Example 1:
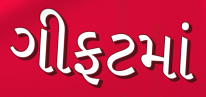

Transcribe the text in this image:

ગીફટમાં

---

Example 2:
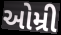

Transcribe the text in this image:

ઓમ્રી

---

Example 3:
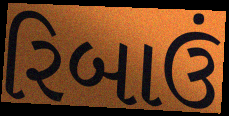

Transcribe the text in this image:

રિબાઉં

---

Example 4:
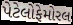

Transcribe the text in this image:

પેટેલોફેમોરલ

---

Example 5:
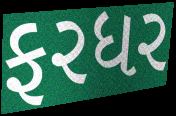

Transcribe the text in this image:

ફરધર